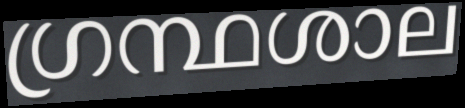
ഗ്രന്ഥശാല